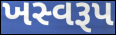
ખસ્વરૂપ